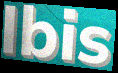
Ibis